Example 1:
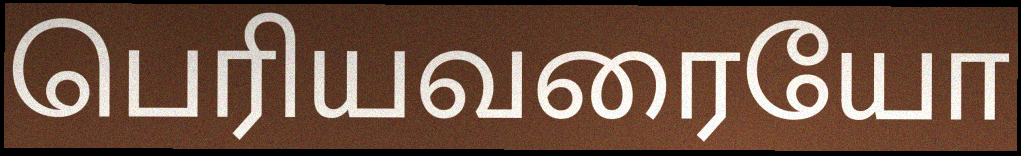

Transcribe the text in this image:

பெரியவரையோ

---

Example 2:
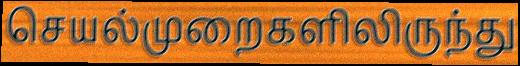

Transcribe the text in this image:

செயல்முறைகளிலிருந்து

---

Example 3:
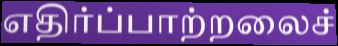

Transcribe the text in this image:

எதிர்ப்பாற்றலைச்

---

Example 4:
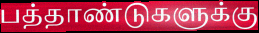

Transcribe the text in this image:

பத்தாண்டுகளுக்கு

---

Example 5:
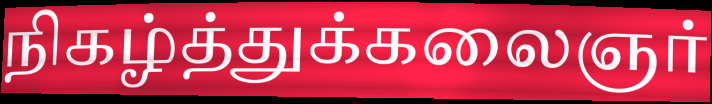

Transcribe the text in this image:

நிகழ்த்துக்கலைஞர்